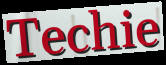
Techie